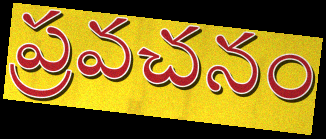
ప్రవచనం